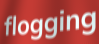
flogging